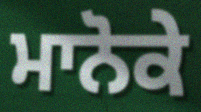
ਮਾਨੋਕੇ